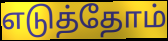
எடுத்தோம்